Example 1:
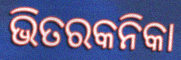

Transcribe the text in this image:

ଭିତରକନିକା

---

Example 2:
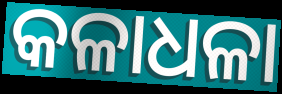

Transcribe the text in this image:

କଳାଧଳା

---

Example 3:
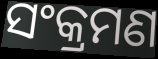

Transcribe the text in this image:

ସଂକ୍ରମଣ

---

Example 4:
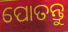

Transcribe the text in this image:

ପୋତନ୍ତୁ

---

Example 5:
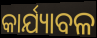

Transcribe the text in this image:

କାର୍ଯ୍ୟାବଳ